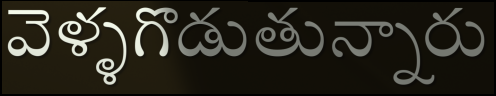
వెళ్ళగొడుతున్నారు